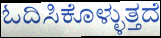
ಓದಿಸಿಕೊಳ್ಳುತ್ತದೆ